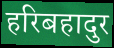
हरिबहादुर